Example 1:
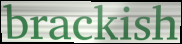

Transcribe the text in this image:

brackish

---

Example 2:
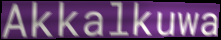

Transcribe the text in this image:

Akkalkuwa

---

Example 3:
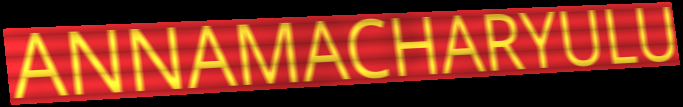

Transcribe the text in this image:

ANNAMACHARYULU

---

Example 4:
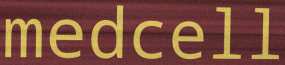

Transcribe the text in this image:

medcell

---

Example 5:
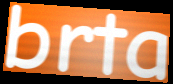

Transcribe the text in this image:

brta